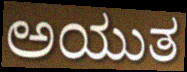
ಅಯುತ